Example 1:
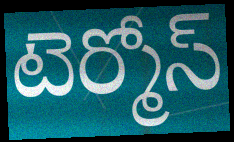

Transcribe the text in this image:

టెర్మోస్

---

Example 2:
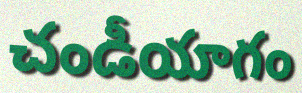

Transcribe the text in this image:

చండీయాగం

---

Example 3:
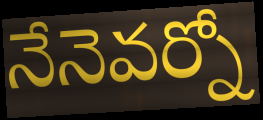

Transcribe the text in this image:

నేనెవర్నో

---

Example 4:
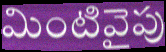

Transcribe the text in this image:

మింటివైపు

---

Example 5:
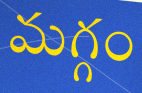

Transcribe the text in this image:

మగ్గం